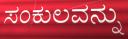
ಸಂಕುಲವನ್ನು